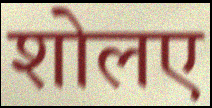
शोलए